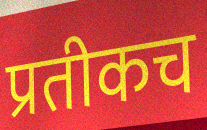
प्रतीकच